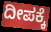
ದೀಪಕ್ಕೆ